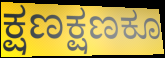
ಕ್ಷಣಕ್ಷಣಕೂ